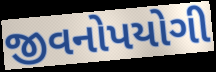
જીવનોપયોગી